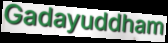
Gadayuddham